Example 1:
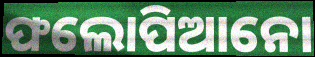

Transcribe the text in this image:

ଫଲୋପିଆନୋ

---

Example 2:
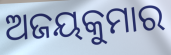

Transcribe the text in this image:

ଅଜୟକୁମାର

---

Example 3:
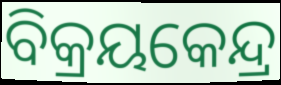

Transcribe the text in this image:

ବିକ୍ରୟକେନ୍ଦ୍ର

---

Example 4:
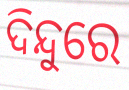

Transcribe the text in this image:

ଦିନ୍ଦୁରେ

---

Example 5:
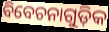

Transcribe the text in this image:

ବିବେଚନାଗୁଡ଼ିକ